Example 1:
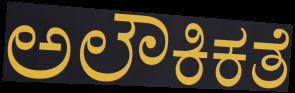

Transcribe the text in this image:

ಅಲೌಕಿಕತೆ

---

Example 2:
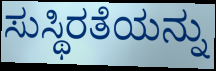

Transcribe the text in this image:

ಸುಸ್ಥಿರತೆಯನ್ನು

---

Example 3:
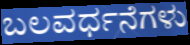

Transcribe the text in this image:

ಬಲವರ್ಧನೆಗಳು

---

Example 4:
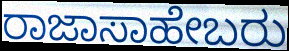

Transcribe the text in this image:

ರಾಜಾಸಾಹೇಬರು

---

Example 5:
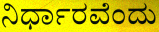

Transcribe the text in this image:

ನಿರ್ಧಾರವೆಂದು